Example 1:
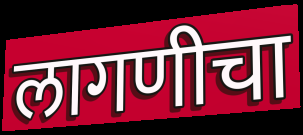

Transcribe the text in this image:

लागणीचा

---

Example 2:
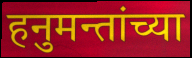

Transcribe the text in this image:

हनुमन्तांच्या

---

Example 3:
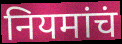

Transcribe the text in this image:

नियमांचं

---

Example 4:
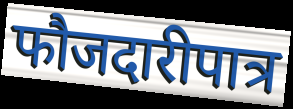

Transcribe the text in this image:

फौजदारीपात्र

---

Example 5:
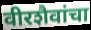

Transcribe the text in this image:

वीरशैवांचा